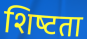
शिष्‍टता